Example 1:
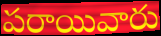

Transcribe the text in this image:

పరాయివారు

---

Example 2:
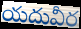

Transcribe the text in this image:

యదువీర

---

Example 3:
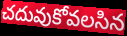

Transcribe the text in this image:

చదువుకోవలసిన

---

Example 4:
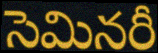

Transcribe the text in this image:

సెమినరీ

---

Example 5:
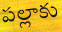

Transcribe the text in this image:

పల్లాకు